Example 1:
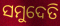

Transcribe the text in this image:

ସମୁଦେତି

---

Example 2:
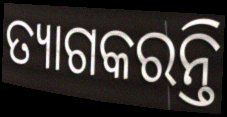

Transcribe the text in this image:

ତ୍ୟାଗକରନ୍ତି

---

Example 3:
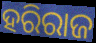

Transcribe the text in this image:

ହରିରାଜ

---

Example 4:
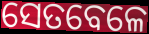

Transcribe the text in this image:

ସେତବେଳେ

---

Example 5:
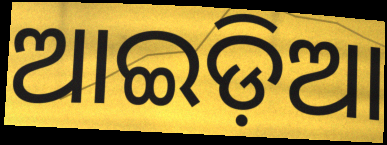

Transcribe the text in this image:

ଆଇଡ଼ିଆ